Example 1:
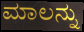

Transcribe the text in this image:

ಮಾಲನ್ನು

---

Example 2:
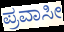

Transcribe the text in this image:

ಪ್ರವಾಸೀ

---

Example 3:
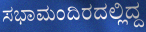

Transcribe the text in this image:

ಸಭಾಮಂದಿರದಲ್ಲಿದ್ದ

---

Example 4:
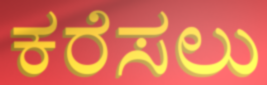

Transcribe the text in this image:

ಕರೆಸಲು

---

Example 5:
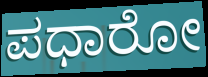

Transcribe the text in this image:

ಪಧಾರೋ